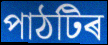
পাঠটিৰ